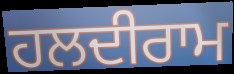
ਹਲਦੀਰਾਮ